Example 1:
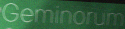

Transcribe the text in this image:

Geminorum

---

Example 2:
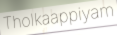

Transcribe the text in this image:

Tholkaappiyam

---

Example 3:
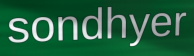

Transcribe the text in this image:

sondhyer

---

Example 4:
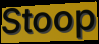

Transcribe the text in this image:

Stoop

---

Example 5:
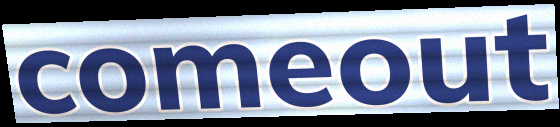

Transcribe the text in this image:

comeout